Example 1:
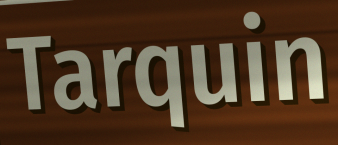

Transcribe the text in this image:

Tarquin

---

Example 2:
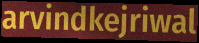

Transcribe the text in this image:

arvindkejriwal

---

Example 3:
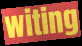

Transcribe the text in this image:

witing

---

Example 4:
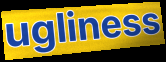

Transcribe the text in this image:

ugliness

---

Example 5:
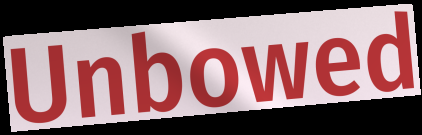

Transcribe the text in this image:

Unbowed